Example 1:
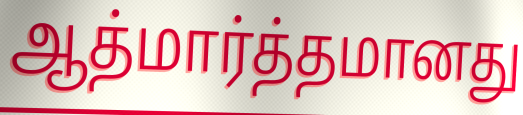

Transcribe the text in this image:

ஆத்மார்த்தமானது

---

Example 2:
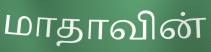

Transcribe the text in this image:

மாதாவின்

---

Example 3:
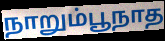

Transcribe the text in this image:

நாறும்பூநாத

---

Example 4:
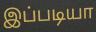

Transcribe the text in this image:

இப்படியா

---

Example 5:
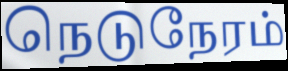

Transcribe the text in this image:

நெடுநேரம்